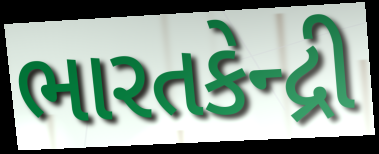
ભારતકેન્દ્રી